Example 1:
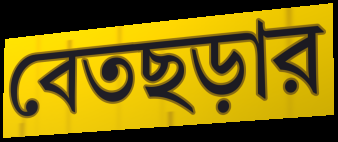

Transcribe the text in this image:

বেতছড়ার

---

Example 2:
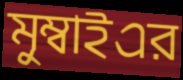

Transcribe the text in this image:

মুম্বাইএর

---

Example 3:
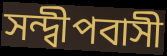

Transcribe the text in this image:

সন্দ্বীপবাসী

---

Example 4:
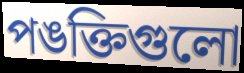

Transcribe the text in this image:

পঙক্তিগুলো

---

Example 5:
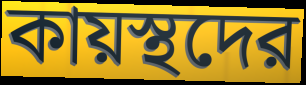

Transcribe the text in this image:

কায়স্থদের